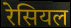
रेसियल